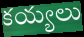
కయ్యలు